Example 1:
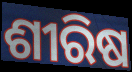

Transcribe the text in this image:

ଶୀରିଷ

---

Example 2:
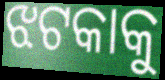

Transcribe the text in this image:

ଝଟକାକୁ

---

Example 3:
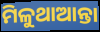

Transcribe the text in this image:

ମିଳୁଥାଆନ୍ତା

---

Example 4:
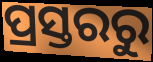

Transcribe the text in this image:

ପ୍ରସ୍ତରରୁ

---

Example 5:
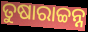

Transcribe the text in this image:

ତୁଷାରାଚ୍ଚନ୍ନ